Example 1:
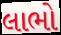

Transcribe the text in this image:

લાભો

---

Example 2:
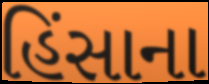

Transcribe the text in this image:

હિંસાના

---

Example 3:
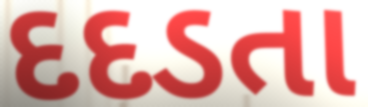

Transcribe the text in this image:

દદડતા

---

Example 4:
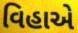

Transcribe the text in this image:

વિહાએ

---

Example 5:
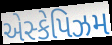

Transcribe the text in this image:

એસ્કેપિઝમ